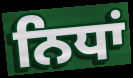
ਨਿਧਾਂ